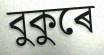
বুকুৰে